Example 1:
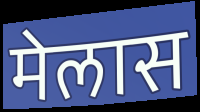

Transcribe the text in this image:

मेलास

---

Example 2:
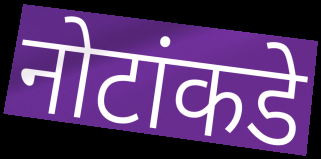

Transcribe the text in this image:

नोटांकडे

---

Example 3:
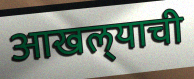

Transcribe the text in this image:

आखल्याची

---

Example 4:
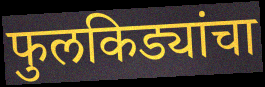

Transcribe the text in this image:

फुलकिड्यांचा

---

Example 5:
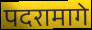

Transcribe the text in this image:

पदरामागे